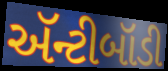
ઍન્ટીબૉડી